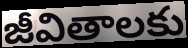
జీవితాలకు